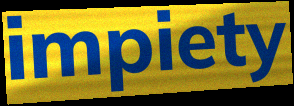
impiety